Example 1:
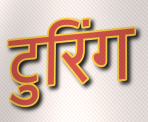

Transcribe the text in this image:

टुरिंग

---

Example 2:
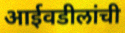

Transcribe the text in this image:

आईवडीलांची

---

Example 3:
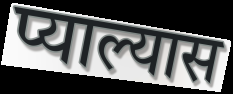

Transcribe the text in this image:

प्याल्यास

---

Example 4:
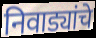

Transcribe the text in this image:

निवाड्यांचे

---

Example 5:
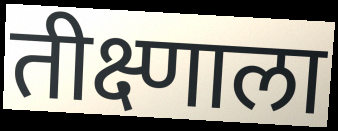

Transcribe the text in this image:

तीक्ष्णाला